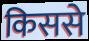
किससे